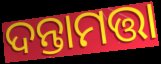
ଦନ୍ତାମତ୍ତା